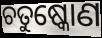
ଚତୁଷ୍କୋଣ